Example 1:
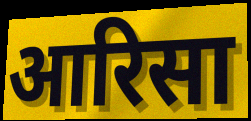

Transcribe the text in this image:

आरिसा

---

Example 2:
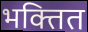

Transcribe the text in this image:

भक्तित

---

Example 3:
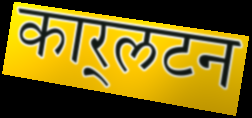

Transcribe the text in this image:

कार्लटन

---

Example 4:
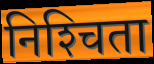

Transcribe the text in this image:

निश्चिता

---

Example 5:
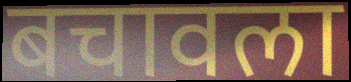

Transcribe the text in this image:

बचावला